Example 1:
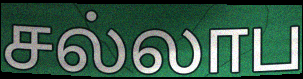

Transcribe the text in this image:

சல்லாப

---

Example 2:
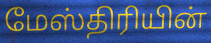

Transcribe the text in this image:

மேஸ்திரியின்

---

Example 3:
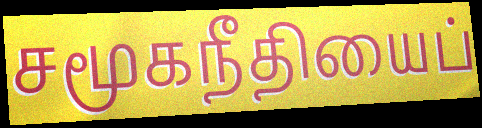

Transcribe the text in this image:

சமூகநீதியைப்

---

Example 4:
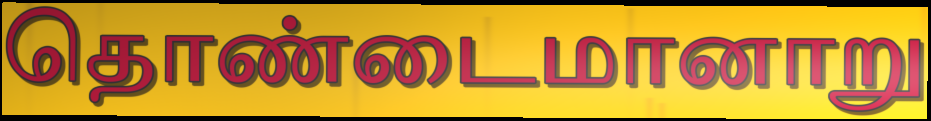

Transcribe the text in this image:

தொண்டைமானாறு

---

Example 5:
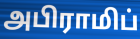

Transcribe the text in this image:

அபிராமிப்